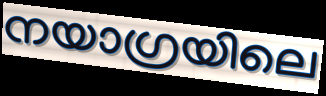
നയാഗ്രയിലെ